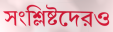
সংশ্লিষ্টদেরও